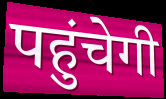
पहुंचेगी